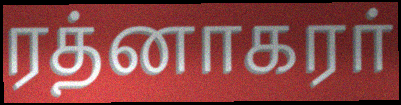
ரத்னாகரர்